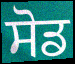
ਸੋਡ